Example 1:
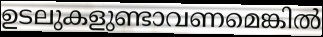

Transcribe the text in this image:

ഉടലുകളുണ്ടാവണമെങ്കിൽ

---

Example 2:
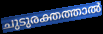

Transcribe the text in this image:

ചുടുരക്തത്താൽ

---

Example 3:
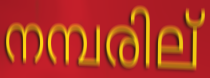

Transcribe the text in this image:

നമ്പരില്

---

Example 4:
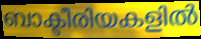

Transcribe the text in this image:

ബാക്ടീരിയകളിൽ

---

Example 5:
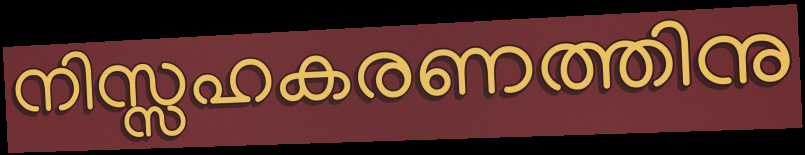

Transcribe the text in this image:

നിസ്സഹകരണത്തിനു